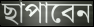
ছাপাবেন